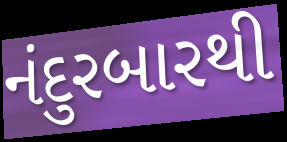
નંદુરબારથી